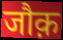
जौक़